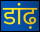
डांढ़